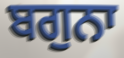
ਬਗੁਨਾ